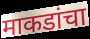
माकडांचा